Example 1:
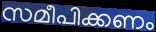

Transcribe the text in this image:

സമീപിക്കണം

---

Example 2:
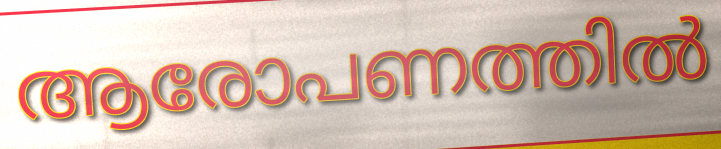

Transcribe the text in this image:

ആരോപണത്തിൽ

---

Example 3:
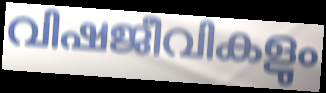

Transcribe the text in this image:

വിഷജീവികളും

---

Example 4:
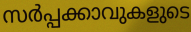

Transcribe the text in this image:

സർപ്പക്കാവുകളുടെ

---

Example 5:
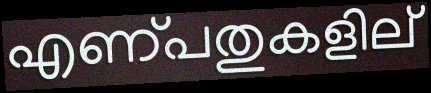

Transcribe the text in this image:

എണ്പതുകളില്